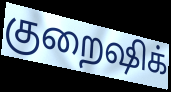
குறைஷிக்